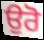
ਉਰੋ